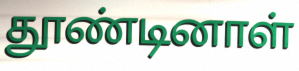
தூண்டினாள்